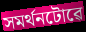
সমৰ্থনটোৱে